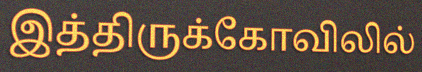
இத்திருக்கோவிலில்